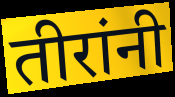
तीरांनी